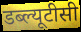
डब्ल्यूटीसी